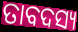
ତାବଦସ୍ୟ